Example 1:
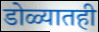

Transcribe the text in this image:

डोळ्यातही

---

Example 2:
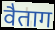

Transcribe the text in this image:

वैताग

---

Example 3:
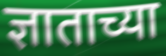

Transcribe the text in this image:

ज्ञाताच्या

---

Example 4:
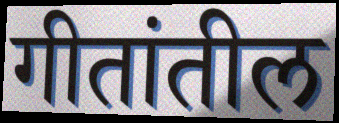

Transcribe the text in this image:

गीतांतील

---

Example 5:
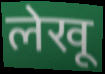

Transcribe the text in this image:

लेखू